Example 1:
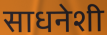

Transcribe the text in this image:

साधनेशी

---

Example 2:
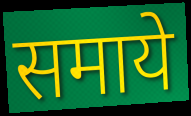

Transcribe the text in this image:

समाये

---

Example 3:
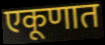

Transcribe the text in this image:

एकूणात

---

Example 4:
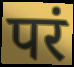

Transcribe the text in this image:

परं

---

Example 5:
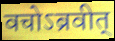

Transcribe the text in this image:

वचोऽब्रवीत्